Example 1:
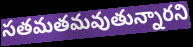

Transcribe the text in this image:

సతమతమవుతున్నారని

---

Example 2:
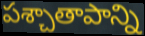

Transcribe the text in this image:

పశ్చాతాపాన్ని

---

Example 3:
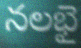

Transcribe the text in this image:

నలభై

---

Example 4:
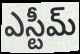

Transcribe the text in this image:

ఎస్టీమ్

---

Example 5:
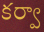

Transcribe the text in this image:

కర్వా